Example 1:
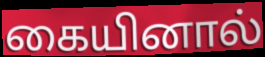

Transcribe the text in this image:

கையினால்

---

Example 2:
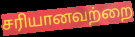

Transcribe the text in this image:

சரியானவற்றை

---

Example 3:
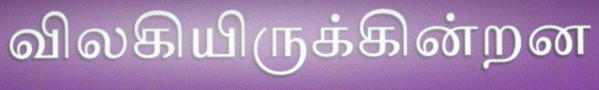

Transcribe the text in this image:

விலகியிருக்கின்றன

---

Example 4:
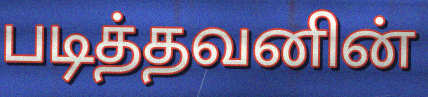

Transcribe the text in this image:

படித்தவனின்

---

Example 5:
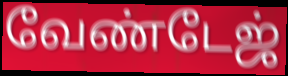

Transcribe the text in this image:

வேண்டேஜ்